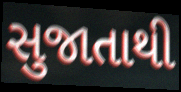
સુજાતાથી